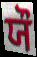
ਯੌ